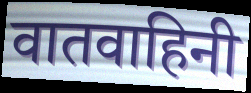
वातवाहिनी